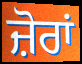
ਜ਼ੋਰਾਂ